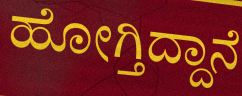
ಹೋಗ್ತಿದ್ದಾನೆ